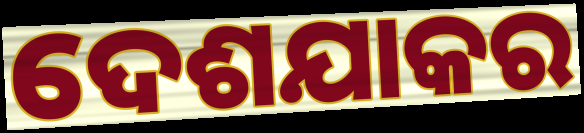
ଦେଶଯାକର